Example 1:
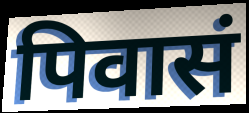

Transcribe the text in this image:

पिवासं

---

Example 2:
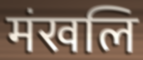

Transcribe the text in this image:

मंखलि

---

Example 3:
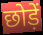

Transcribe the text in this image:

छोड़ें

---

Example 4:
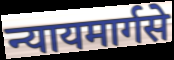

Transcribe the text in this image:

न्यायमार्गसे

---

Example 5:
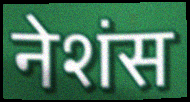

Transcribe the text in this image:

नेशंस